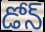
డోన్